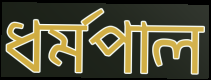
ধর্মপাল